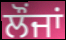
ਲੌਂਜਾਂ